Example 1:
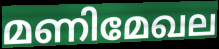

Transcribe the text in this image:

മണിമേഖല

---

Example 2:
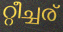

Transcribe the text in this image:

റ്റീച്ചര്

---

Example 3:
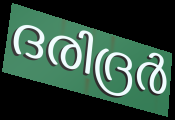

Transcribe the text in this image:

ദരിദ്രർ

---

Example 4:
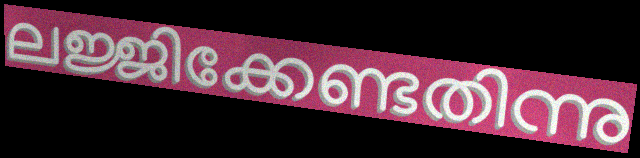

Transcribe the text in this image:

ലജ്ജിക്കേണ്ടതിന്നു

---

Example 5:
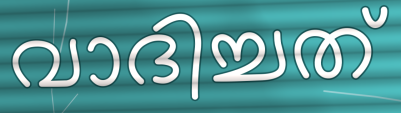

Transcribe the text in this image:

വാദിച്ചത്